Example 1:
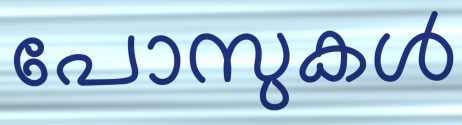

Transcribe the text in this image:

പോസുകൾ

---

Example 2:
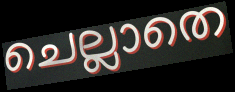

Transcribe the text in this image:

ചെല്ലാതെ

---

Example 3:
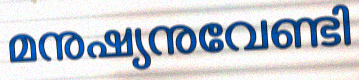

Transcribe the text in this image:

മനുഷ്യനുവേണ്ടി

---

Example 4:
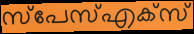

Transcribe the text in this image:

സ്പേസ്എക്സ്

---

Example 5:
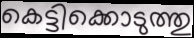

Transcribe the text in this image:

കെട്ടിക്കൊടുത്തു